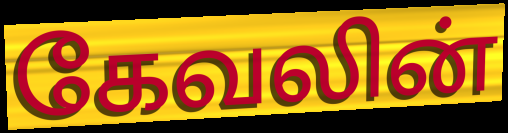
கேவலின்